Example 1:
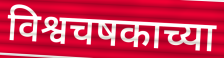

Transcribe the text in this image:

विश्वचषकाच्या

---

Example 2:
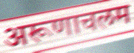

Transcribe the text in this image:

अरूणाचलम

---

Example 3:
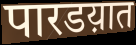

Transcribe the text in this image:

पारडय़ात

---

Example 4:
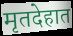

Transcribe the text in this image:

मृतदेहात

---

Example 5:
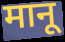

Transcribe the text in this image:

मानू